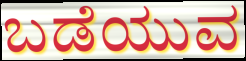
ಬಡೆಯುವ